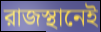
রাজস্থানেই